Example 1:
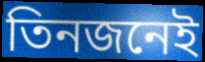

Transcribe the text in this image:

তিনজনেই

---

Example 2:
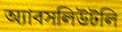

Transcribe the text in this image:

অ্যাবসলিউটলি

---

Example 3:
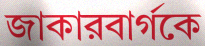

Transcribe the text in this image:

জাকারবার্গকে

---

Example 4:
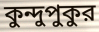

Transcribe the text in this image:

কুন্দুপুকুর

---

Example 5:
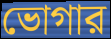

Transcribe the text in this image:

ভোগার